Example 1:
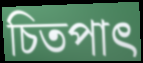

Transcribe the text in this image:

চিতপাৎ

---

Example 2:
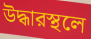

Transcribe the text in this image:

উদ্ধারস্থলে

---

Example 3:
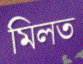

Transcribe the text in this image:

মিলত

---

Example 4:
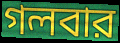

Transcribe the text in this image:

গলবার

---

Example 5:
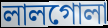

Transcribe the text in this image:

লালগোলা